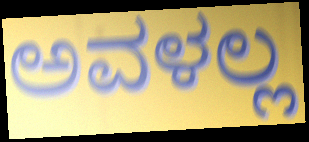
ಅವಳಲ್ಲ